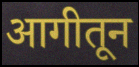
आगीतून